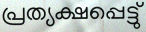
പ്രത്യക്ഷപ്പെട്ടു്